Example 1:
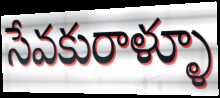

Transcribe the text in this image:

సేవకురాళ్ళూ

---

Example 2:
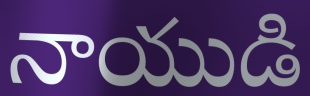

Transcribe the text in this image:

నాయుడి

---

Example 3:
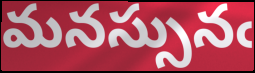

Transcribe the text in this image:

మనస్సునఁ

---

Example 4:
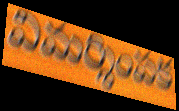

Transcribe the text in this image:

విమర్శింపక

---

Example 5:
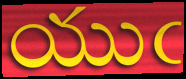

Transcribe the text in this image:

యుఁ